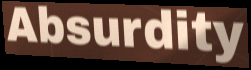
Absurdity